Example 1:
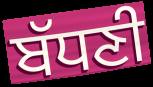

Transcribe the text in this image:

ਬੱਧਣੀ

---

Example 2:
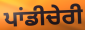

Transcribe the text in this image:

ਪਾਂਡੀਚੇਰੀ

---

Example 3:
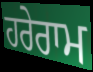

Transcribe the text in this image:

ਹਰੇਰਾਮ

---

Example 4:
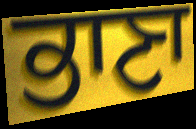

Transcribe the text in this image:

ਭਾਣਾ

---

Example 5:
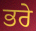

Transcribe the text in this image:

ਭਰੇ